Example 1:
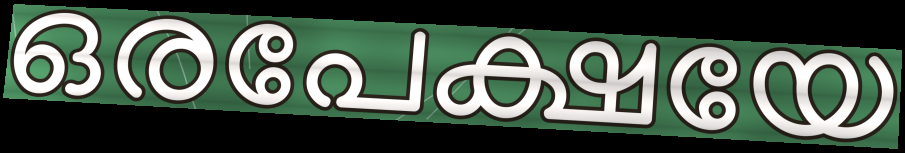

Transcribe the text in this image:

ഒരപേക്ഷയേ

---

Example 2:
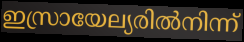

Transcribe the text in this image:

ഇസ്രായേല്യരിൽനിന്ന്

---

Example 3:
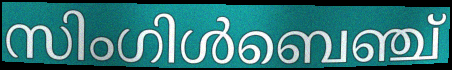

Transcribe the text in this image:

സിംഗിൾബെഞ്ച്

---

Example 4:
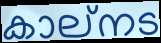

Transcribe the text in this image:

കാല്നട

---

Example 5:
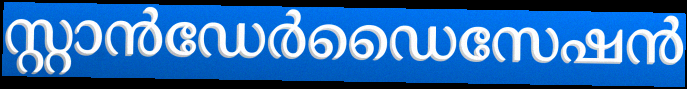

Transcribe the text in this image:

സ്റ്റാൻഡേർഡൈസേഷൻ